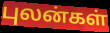
புலன்கள்